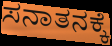
ಸನಾತನಕ್ಕೆ